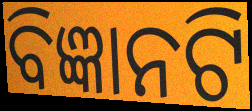
ବିଜ୍ଞାନଟି